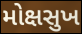
મોક્ષસુખ